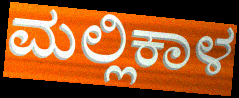
ಮಲ್ಲಿಕಾಳ